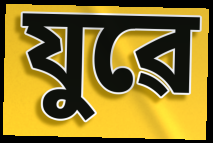
যুৱে